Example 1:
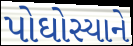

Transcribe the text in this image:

પોઘોસ્યાને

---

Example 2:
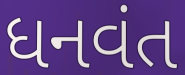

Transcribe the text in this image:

ધનવંત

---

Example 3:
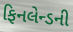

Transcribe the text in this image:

ફિનલેન્ડની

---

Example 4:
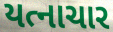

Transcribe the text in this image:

યત્નાચાર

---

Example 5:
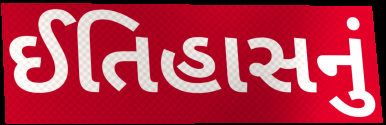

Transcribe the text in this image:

ઈતિહાસનું